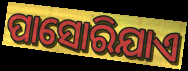
ପାସୋରିଯାଏ